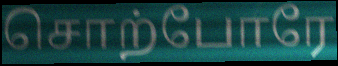
சொற்போரே